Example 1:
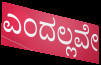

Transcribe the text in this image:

ಎಂದಲ್ಲವೇ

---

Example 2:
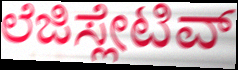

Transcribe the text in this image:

ಲೆಜಿಸ್ಲೇಟಿವ್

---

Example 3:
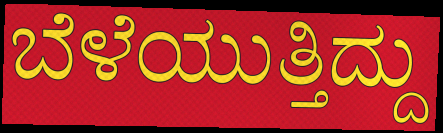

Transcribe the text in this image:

ಬೆಳೆಯುತ್ತಿದ್ದು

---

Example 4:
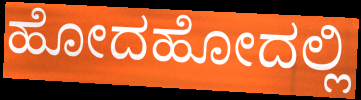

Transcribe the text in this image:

ಹೋದಹೋದಲ್ಲಿ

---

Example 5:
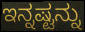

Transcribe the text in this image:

ಇನ್ನಷ್ಟನ್ನು